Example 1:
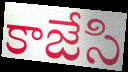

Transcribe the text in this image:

కాజేసి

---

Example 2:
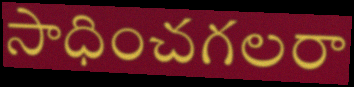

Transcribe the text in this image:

సాధించగలరా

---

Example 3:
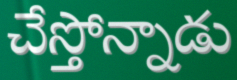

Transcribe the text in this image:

చేస్తోన్నాడు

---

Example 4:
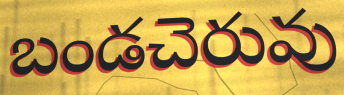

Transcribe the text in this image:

బండచెరువు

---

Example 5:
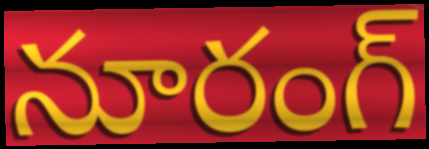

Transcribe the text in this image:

నూరంగ్